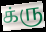
க்ரு